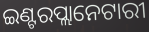
ଇଣ୍ଟରପ୍ଲାନେଟାରୀ